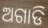
ଅଗାଡି